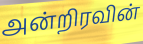
அன்றிரவின்